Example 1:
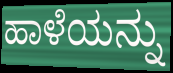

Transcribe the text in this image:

ಹಾಳೆಯನ್ನು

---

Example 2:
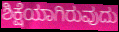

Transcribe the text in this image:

ಶಿಕ್ಷೆಯಾಗಿರುವುದು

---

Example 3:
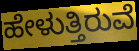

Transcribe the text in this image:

ಹೇಳುತ್ತಿರುವೆ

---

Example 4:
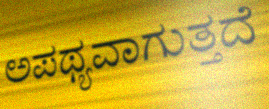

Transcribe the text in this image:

ಅಪಥ್ಯವಾಗುತ್ತದೆ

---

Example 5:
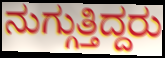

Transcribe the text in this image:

ನುಗ್ಗುತ್ತಿದ್ದರು